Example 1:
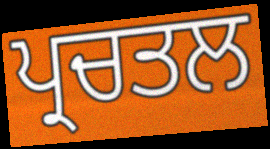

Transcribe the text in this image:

ਪ੍ਰਚਤਲ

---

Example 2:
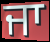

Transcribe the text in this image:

ਜਾ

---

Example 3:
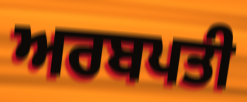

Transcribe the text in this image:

ਅਰਬਪਤੀ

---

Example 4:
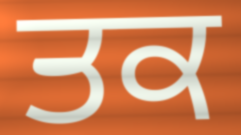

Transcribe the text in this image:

ਤਕ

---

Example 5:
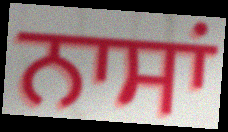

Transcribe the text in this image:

ਨਾਸਾਂ